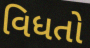
વિધતો